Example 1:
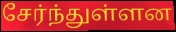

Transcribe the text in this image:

சேர்ந்துள்ளன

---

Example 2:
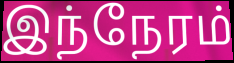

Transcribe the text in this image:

இந்நேரம்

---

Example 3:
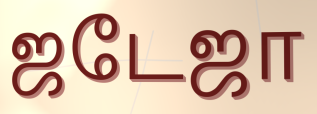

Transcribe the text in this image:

ஜடேஜா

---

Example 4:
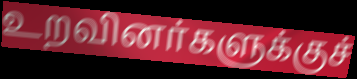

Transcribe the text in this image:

உறவினர்களுக்குச்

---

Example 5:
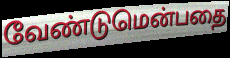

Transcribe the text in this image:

வேண்டுமென்பதை